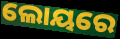
ଲୋୟରେ